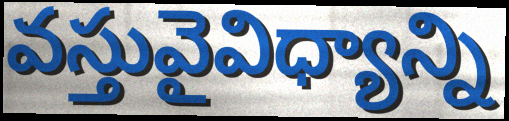
వస్తువైవిధ్యాన్ని